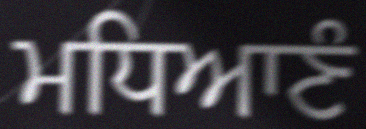
ਮਧਿਆਣੰ